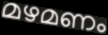
മഴമണം